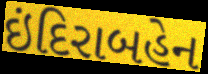
ઇંદિરાબહેન